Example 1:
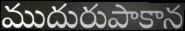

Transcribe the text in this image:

ముదురుపాకాన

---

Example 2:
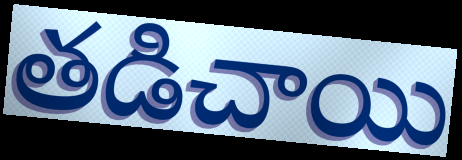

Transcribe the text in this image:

తడిచాయి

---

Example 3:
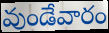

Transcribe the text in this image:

వుండేవారం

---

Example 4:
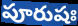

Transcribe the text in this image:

పూరుషః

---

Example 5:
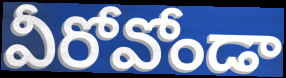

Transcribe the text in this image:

వీరోవోండా